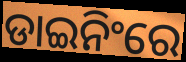
ଡାଇନିଂରେ